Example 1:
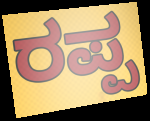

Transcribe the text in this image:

ರಪ್ಪ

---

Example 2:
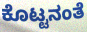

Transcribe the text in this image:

ಕೊಟ್ಟನಂತೆ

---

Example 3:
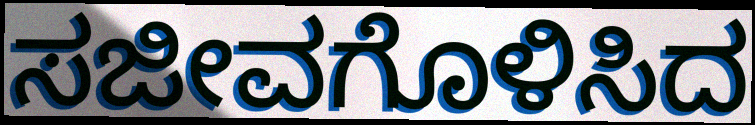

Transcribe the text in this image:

ಸಜೀವಗೊಳಿಸಿದ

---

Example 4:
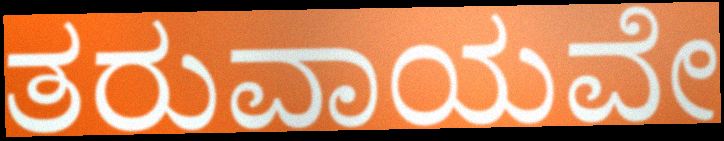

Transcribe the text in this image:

ತರುವಾಯವೇ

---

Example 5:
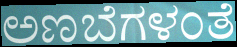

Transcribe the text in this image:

ಅಣಬೆಗಳಂತೆ